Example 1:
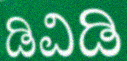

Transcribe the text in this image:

ಡಿವಿಡಿ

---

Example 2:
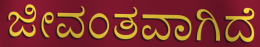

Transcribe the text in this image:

ಜೀವಂತವಾಗಿದೆ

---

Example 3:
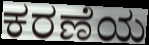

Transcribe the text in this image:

ಕರಣೆಯ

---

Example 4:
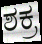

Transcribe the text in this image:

ಶಕ್ರ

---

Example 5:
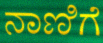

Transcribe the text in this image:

ನಾಣಿಗೆ